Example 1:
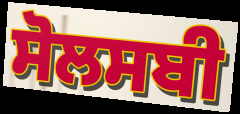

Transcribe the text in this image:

ਸੋਲਸਬੀ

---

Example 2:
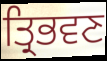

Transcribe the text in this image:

ਤ੍ਰਿਭਵਣ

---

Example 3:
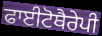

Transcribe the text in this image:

ਫਾਈਟੋਥੈਰੇਪੀ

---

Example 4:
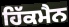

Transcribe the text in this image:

ਹਿੱਕਮੈਨ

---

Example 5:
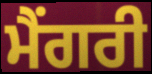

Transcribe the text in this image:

ਮੈਂਗਰੀ